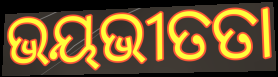
ଭୟଭୀତତା